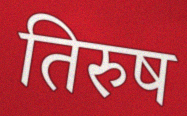
तिरुष